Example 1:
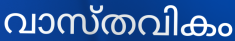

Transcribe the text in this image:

വാസ്തവികം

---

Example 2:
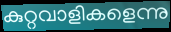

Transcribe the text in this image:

കുറ്റവാളികളെന്നു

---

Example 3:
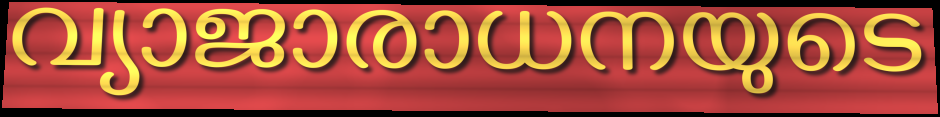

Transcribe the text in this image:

വ്യാജാരാധനയുടെ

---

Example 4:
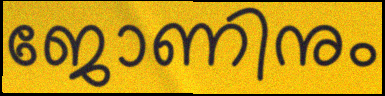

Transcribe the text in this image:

ജോണിനും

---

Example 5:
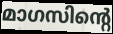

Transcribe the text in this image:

മാഗസിന്റെ